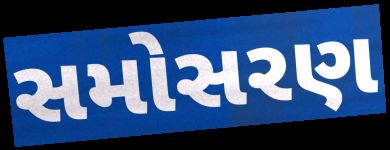
સમોસરણ